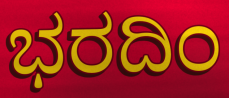
ಭರದಿಂ